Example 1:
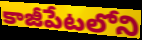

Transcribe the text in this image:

కాజీపేటలోని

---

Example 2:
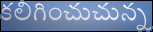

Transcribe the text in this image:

కలిగించుచున్న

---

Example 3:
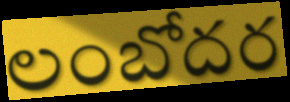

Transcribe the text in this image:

లంబోదర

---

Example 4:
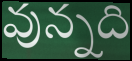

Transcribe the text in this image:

వున్నది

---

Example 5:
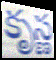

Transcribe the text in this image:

కృస్ణ